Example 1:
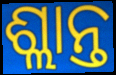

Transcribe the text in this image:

ଶ୍ଲାନ୍ତ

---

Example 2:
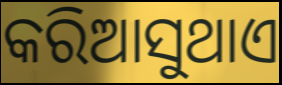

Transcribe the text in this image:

କରିଆସୁଥାଏ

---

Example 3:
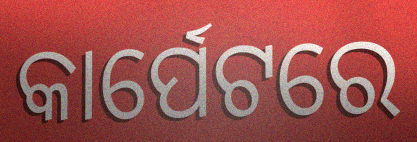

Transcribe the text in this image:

କାର୍ପେଟରେ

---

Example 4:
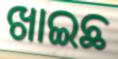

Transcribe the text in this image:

ଖାଇଛ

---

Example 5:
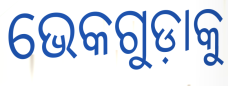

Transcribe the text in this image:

ଭେକଗୁଡ଼ାକୁ